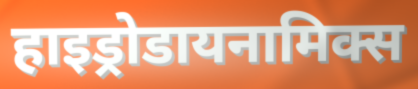
हाइड्रोडायनामिक्स